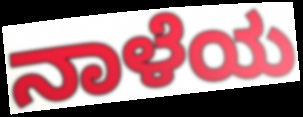
ನಾಳೆಯ